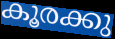
കൂരക്കു